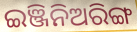
ଇଞ୍ଜିନିଅରିଙ୍ଗ